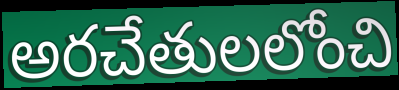
అరచేతులలోంచి